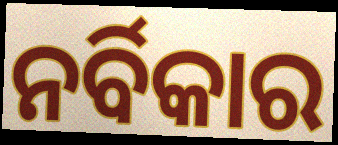
ନର୍ବିକାର